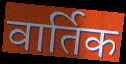
वार्तिक